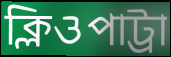
ক্লিওপাট্রা